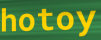
hotoy